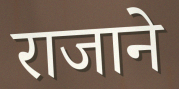
राजाने